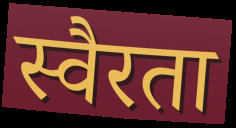
स्वैरता